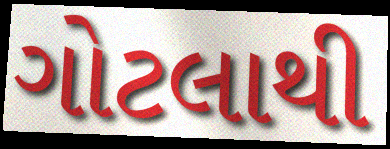
ગોટલાથી